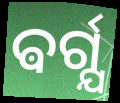
ଵର୍ଗ୍ଯ